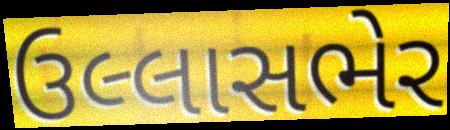
ઉલ્લાસભેર